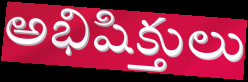
అభిషిక్తులు